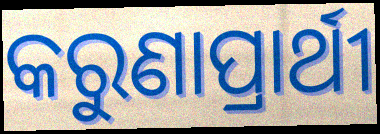
କରୁଣାପ୍ରାର୍ଥୀ